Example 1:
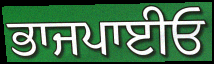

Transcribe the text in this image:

ਭਾਜਪਾਈਓ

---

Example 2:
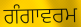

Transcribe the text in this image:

ਗੰਗਾਵਰਮ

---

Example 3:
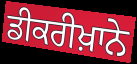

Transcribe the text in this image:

ਡੀਕਰੀਖ਼ਾਨੇ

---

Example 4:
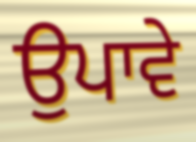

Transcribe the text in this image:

ਉਪਾਵੇ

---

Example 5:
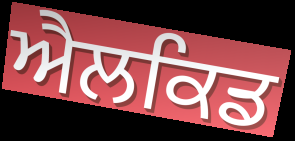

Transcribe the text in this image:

ਐਲਕਿਡ